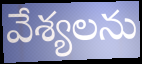
వేశ్యలను